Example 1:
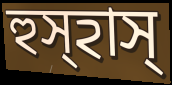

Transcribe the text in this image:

হুস্‌হাস্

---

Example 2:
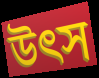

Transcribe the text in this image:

উত্‍স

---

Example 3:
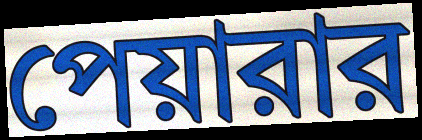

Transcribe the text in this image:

পেয়ারার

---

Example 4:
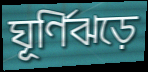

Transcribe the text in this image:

ঘূর্ণিঝড়ে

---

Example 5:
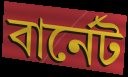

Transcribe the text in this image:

বার্নেট